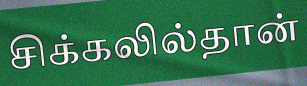
சிக்கலில்தான்